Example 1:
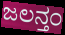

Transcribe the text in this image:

ಜಲನ್ತಂ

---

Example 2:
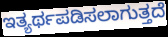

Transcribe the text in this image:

ಇತ್ಯರ್ಥಪಡಿಸಲಾಗುತ್ತದೆ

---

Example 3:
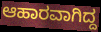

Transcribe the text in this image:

ಆಹಾರವಾಗಿದ್ದ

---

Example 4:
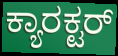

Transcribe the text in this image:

ಕ್ಯಾರಕ್ಟರ್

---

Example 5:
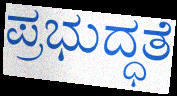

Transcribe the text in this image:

ಪ್ರಭುದ್ಧತೆ